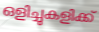
ഒളിച്ചുകളിക്ക്